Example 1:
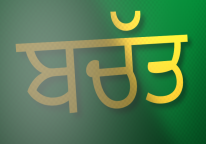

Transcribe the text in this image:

ਬਚੱਤ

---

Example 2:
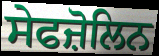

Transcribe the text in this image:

ਸੇਫਜ਼ੋਲਿਨ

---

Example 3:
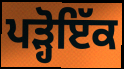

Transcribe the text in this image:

ਪੜ੍ਹੋਇੱਕ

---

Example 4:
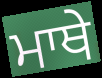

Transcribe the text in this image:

ਮਾਥੇ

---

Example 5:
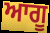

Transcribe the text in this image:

ਆਗੂ